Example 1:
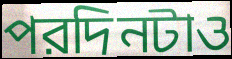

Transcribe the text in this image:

পরদিনটাও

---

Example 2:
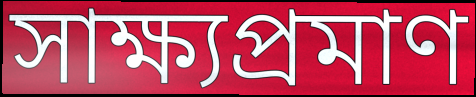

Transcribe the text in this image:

সাক্ষ্যপ্রমাণ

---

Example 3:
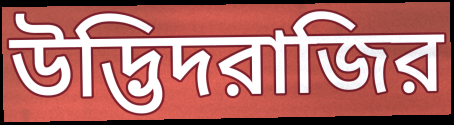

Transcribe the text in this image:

উদ্ভিদরাজির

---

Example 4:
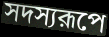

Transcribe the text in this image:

সদস্যরূপে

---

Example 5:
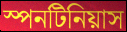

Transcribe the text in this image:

স্পনটিনিয়াস